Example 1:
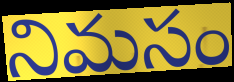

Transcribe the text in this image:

నిమసం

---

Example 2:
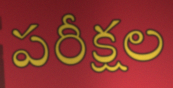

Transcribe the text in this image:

పరీక్షల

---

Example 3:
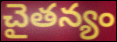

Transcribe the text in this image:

చైతన్యం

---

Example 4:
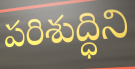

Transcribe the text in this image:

పరిశుద్ధిని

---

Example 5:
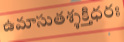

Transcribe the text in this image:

ఉమాసుతశ్శక్తిధరః